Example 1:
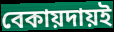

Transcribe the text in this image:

বেকায়দায়ই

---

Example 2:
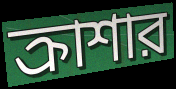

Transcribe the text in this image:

ক্রাশার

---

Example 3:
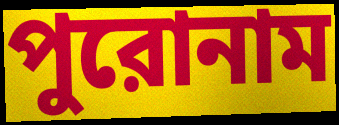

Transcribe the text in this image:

পুরোনাম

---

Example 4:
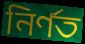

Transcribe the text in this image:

নির্ণত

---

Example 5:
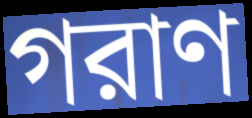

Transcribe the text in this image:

গরাণ